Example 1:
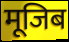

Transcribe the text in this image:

मूजिब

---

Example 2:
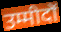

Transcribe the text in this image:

उम्मीदों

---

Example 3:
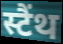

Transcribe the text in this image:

स्टैंथ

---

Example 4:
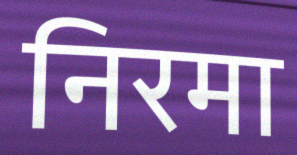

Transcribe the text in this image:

निरमा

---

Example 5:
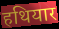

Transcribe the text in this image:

हथियार